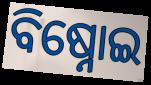
ବିଷ୍ନୋଇ